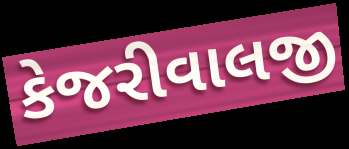
કેજરીવાલજી